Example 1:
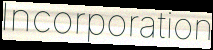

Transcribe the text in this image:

Incorporation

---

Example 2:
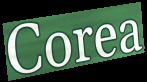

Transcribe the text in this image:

Corea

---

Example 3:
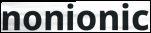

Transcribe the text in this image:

nonionic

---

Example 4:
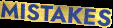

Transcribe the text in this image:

MISTAKES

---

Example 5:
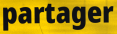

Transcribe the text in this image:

partager